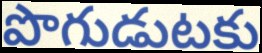
పొగుడుటకు